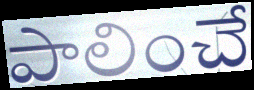
పాలించే